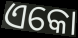
ଏକୋ